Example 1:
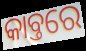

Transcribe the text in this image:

କାବ୍ତରେ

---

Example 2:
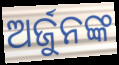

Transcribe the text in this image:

ଅର୍ଜୁନଙ୍କ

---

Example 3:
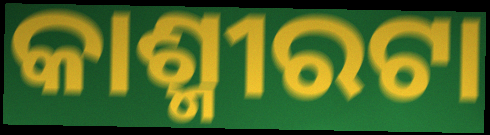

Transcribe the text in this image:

କାଶ୍ମୀରଟା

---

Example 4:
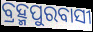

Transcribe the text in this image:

ବ୍ରହ୍ମପୁରବାସୀ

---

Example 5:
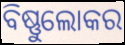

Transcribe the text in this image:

ବିଷ୍ଣୁଲୋକର